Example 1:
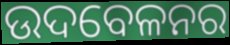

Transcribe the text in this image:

ଉଦବେଳନର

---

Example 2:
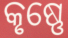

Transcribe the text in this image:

କୃଷ୍ଣେ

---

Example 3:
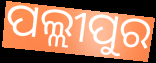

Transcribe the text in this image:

ପଲ୍ଲୀପୁର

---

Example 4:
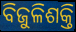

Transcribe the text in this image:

ବିଜୁଳିଶକ୍ତି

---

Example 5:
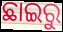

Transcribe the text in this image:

ଛାଇରୁ